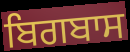
ਬਿਗਬਾਸ